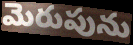
మెరుపును